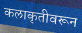
कलाकृतीवरून